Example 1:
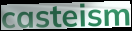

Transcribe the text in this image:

casteism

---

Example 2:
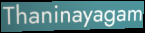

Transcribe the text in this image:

Thaninayagam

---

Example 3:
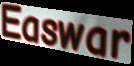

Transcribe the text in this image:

Easwar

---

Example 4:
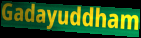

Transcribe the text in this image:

Gadayuddham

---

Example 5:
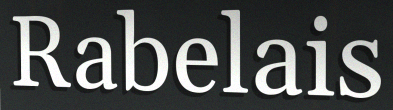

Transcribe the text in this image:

Rabelais